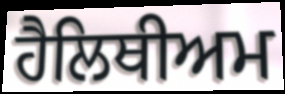
ਹੈਲਿਥੀਅਮ